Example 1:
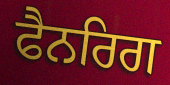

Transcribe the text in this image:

ਫੈਨਰਿਗ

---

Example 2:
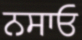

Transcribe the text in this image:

ਨਸਾਓ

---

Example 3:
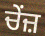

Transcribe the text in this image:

ਚੇਂਜ਼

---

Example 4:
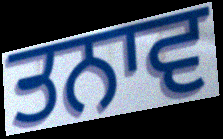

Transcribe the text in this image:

ਤਨਾਵ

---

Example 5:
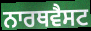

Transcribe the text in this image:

ਨਾਰਥਵੈਸਟ